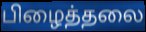
பிழைத்தலை